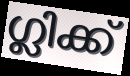
ഗ്ലിക്ക്